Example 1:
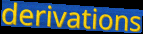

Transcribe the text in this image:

derivations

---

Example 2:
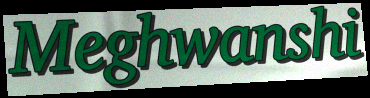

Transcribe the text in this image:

Meghwanshi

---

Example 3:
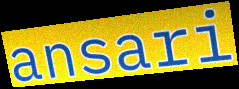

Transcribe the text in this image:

ansari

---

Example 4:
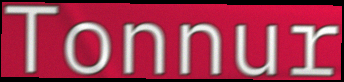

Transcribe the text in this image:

Tonnur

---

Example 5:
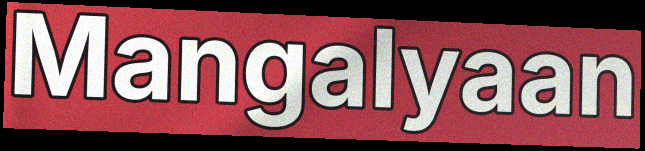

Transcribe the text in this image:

Mangalyaan